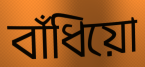
বাঁধিয়ো